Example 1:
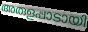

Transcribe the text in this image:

അരുളപ്പാടായി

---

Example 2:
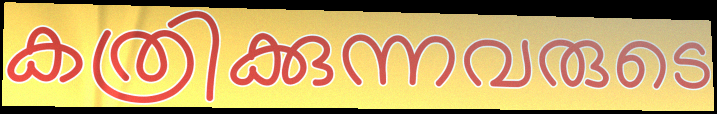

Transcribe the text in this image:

കത്രിക്കുന്നവരുടെ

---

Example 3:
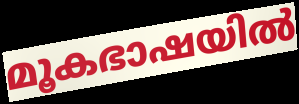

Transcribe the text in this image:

മൂകഭാഷയിൽ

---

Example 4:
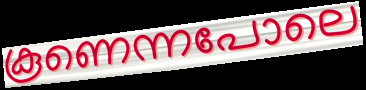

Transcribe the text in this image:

കൂണെന്നപോലെ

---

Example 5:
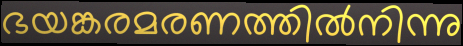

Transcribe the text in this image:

ഭയങ്കരമരണത്തിൽനിന്നു